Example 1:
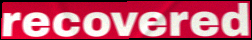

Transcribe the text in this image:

recovered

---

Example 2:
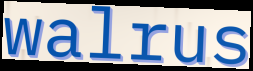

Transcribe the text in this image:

walrus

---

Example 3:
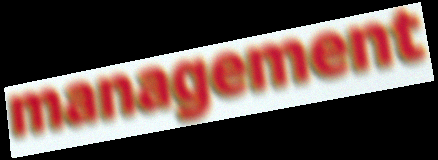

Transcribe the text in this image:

management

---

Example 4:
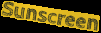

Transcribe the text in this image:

Sunscreen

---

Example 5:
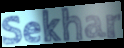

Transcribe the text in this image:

Sekhar